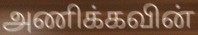
அணிக்கவின்